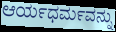
ಆರ್ಯಧರ್ಮವನ್ನು